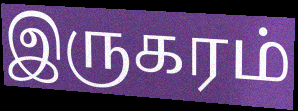
இருகரம்